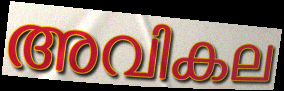
അവികല